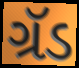
ગ્રૅડ